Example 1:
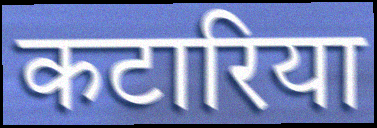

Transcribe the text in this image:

कटारिया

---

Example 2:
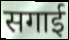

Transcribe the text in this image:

सगाई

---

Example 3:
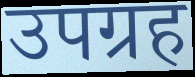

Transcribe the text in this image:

उपग्रह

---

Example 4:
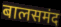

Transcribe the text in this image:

बालसमंद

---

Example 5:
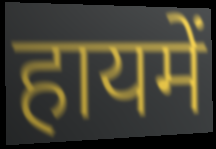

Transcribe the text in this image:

हायमें